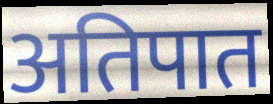
अतिपात